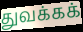
துவக்கக்